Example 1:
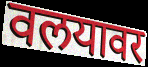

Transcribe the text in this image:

वलयावर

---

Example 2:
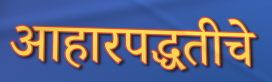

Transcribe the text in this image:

आहारपद्धतीचे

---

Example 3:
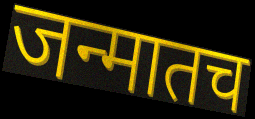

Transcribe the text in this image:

जन्मातच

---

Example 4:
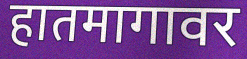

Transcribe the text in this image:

हातमागावर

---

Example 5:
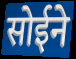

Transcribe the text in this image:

सोईने